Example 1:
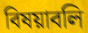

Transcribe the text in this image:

বিষয়াবলি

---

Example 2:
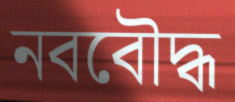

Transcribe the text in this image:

নববৌদ্ধ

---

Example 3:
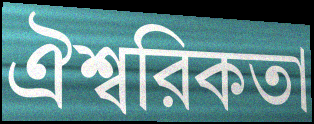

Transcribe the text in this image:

ঐশ্বরিকতা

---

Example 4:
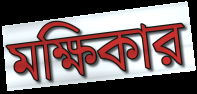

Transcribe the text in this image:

মক্ষিকার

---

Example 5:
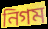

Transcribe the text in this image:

নিগম